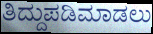
ತಿದ್ದುಪಡಿಮಾಡಲು